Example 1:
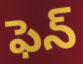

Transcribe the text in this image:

ఫెన్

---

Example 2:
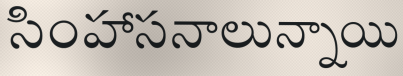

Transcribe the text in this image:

సింహాసనాలున్నాయి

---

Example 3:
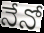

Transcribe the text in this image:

నేనో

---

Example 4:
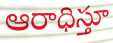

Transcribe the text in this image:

ఆరాధిస్తూ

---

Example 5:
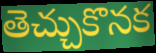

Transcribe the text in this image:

తెచ్చుకొనక